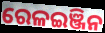
ରେଳଇଞ୍ଜିନ